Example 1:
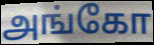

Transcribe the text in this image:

அங்கோ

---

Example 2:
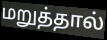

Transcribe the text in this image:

மறுத்தால்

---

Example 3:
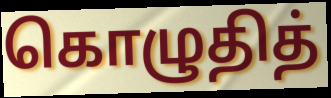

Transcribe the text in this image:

கொழுதித்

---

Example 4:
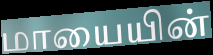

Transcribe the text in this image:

மாயையின்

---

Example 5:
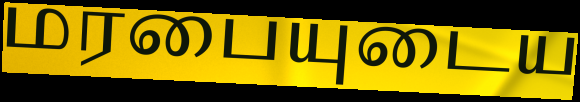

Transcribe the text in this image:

மரபையுடைய